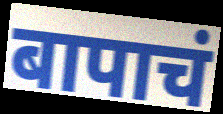
बापाचं